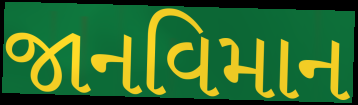
જાનવિમાન